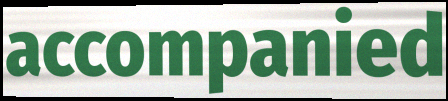
accompanied